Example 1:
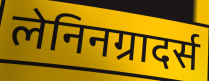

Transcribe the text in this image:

लेनिनग्रादर्स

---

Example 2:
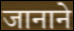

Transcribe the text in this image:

जानाने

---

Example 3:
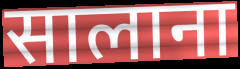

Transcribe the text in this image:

सालाना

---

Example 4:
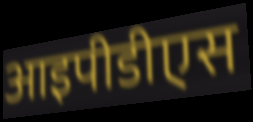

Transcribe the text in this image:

आइपीडीएस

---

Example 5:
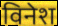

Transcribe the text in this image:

विनेश